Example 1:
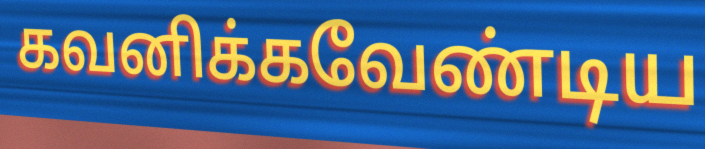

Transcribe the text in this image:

கவனிக்கவேண்டிய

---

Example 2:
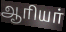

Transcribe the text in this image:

ஆரியர்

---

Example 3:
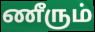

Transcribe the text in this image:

ணீரும்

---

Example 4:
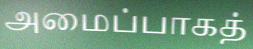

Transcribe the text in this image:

அமைப்பாகத்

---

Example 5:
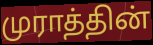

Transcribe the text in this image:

முராத்தின்